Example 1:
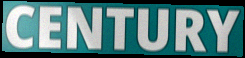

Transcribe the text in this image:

CENTURY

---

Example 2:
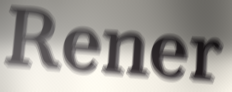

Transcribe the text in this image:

Rener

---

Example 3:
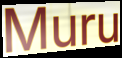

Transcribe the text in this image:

Muru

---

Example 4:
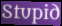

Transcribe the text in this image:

Stupid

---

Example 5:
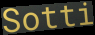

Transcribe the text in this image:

Sotti